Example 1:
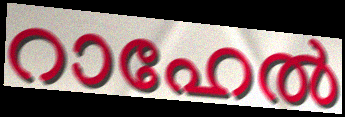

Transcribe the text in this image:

റാഹേൽ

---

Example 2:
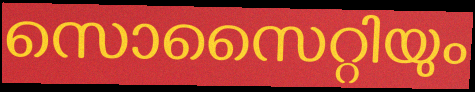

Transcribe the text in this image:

സൊസൈറ്റിയും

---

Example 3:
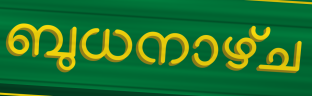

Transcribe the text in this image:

ബുധനാഴ്‌ച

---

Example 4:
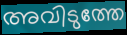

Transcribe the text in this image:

അവിടുത്തേ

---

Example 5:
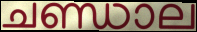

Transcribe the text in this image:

ചണ്ഡാല